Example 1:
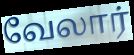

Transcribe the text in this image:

வேலார்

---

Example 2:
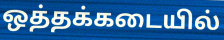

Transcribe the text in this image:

ஒத்தக்கடையில்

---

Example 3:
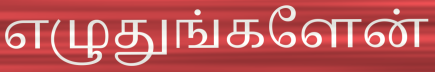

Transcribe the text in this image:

எழுதுங்களேன்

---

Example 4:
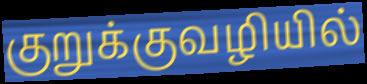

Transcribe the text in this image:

குறுக்குவழியில்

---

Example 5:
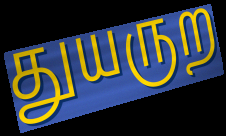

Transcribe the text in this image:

துயருற